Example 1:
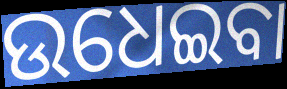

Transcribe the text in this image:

ଉଧେଇବା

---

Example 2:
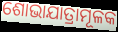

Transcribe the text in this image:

ଶୋଭାଯାତ୍ରାମୂଳକ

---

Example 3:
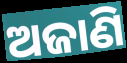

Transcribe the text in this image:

ଅଜାଣି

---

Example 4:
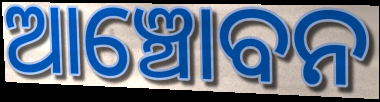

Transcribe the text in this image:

ଆଞ୍ଚୋବନ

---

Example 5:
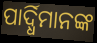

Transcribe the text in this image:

ପାର୍ଦ୍ଧିମାନଙ୍କ